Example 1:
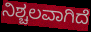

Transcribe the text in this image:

ನಿಶ್ಚಲವಾಗಿದೆ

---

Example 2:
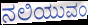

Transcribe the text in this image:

ನಲಿಯುವಂ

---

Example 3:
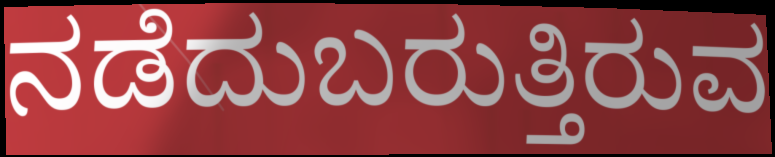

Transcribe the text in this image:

ನಡೆದುಬರುತ್ತಿರುವ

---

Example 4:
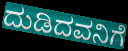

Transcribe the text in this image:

ದುಡಿದವನಿಗೆ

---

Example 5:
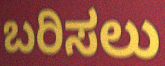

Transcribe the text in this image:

ಬರಿಸಲು